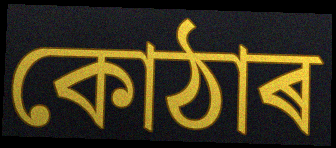
কোঠাৰ